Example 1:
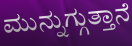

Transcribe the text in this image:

ಮುನ್ನುಗ್ಗುತ್ತಾನೆ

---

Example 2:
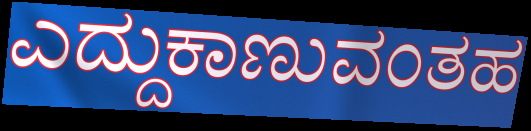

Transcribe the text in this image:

ಎದ್ದುಕಾಣುವಂತಹ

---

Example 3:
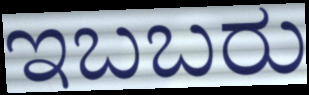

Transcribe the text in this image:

ಇಬಬರು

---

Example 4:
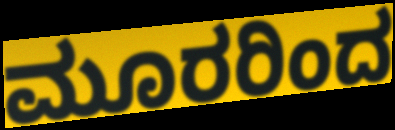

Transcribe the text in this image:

ಮೂರರಿಂದ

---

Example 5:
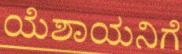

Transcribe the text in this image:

ಯೆಶಾಯನಿಗೆ